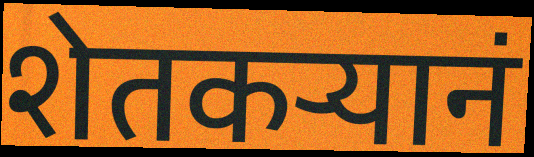
शेतकर्‍यानं